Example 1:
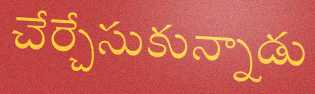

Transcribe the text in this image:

చేర్చేసుకున్నాడు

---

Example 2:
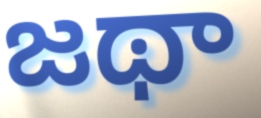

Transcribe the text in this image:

జథా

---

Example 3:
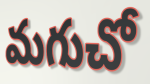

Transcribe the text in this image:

మగుచో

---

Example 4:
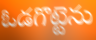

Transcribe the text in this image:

ఓడగొట్టెను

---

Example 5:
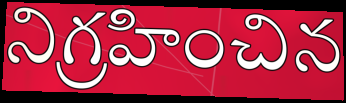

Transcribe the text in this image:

నిగ్రహించిన